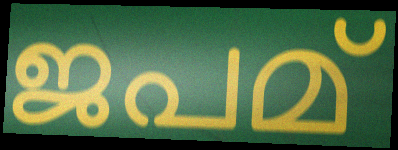
ജപമ്